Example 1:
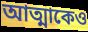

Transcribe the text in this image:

আত্মাকেও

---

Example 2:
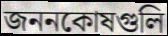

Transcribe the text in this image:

জননকোষগুলি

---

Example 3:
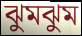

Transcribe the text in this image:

ঝুমঝুম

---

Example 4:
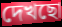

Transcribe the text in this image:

দেখছো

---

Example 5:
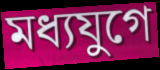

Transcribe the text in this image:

মধ্যযুগে